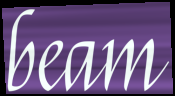
beam